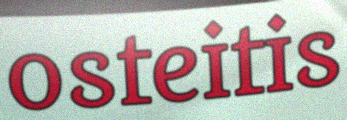
osteitis